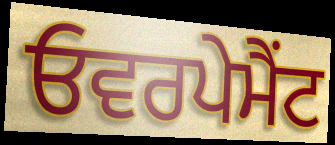
ਓਵਰਪੇਮੈਂਟ